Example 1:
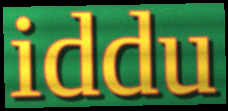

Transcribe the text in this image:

iddu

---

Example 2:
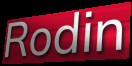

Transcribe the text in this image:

Rodin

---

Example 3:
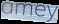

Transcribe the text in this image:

amey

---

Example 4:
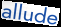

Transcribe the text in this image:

allude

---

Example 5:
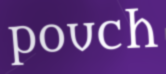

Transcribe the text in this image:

pouch